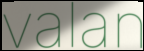
valan